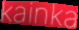
kainka